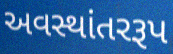
અવસ્થાંતરરૂપ